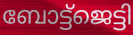
ബോട്ട്ജെട്ടി